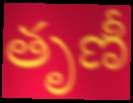
తృణీ